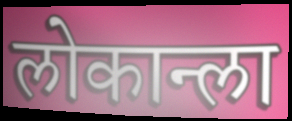
लोकान्ला